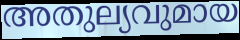
അതുല്യവുമായ